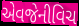
એવજેનીવિચ